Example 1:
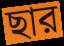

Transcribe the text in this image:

ছার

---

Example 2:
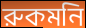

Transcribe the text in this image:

রুকমনি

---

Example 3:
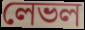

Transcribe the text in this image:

লেভল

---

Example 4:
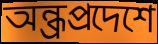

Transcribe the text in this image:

অন্ধ্রপ্রদেশে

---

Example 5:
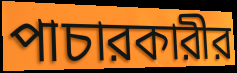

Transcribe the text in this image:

পাচারকারীর